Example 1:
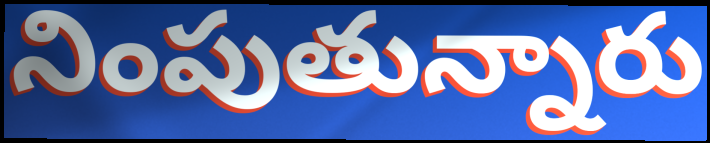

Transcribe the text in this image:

నింపుతున్నారు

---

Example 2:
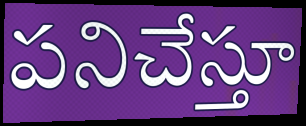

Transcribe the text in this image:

పనిచేస్తూ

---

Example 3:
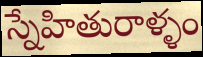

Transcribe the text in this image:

స్నేహితురాళ్ళం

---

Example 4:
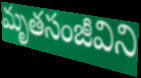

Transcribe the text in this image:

మృతసంజీవిని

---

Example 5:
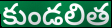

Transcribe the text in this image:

కుండలిత